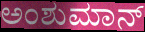
ಅಂಶುಮಾನ್